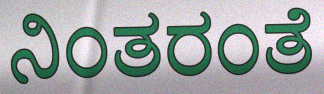
ನಿಂತರಂತೆ